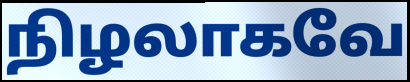
நிழலாகவே